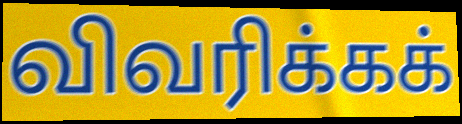
விவரிக்கக்